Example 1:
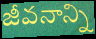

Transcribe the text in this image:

జీవనాన్ని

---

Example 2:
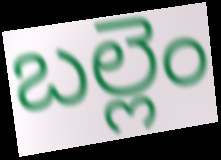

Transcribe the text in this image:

బల్లెం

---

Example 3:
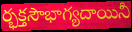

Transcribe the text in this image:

ర్భక్తసౌభాగ్యదాయినీ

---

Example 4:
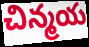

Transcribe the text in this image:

చిన్మయ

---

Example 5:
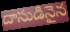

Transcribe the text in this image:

దాసుడినైన